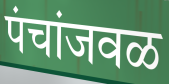
पंचांजवळ